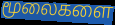
மூலைகளை